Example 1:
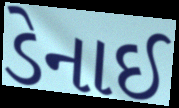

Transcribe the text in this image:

ડેનાઈ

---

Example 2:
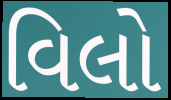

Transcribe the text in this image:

વિલો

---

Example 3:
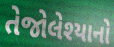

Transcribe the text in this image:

તેજોલેશ્યાનો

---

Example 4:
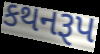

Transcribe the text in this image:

કથનરૂપ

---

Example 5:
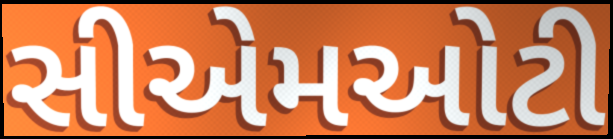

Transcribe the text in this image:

સીએમઓટી